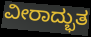
ವೀರಾದ್ಭುತ